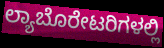
ಲ್ಯಾಬೊರೇಟರಿಗಳಲ್ಲಿ